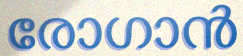
രോഗാൻ